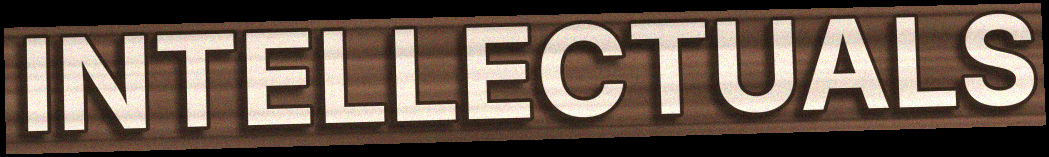
INTELLECTUALS